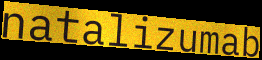
natalizumab